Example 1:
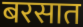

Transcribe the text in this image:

बरसात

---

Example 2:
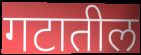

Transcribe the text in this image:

गटातील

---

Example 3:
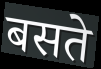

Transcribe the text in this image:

बसते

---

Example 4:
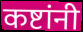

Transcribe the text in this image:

कष्टांनी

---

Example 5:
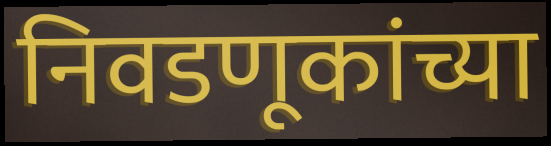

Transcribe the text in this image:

निवडणूकांच्या